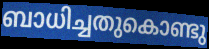
ബാധിച്ചതുകൊണ്ടു